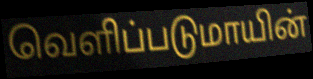
வெளிப்படுமாயின்